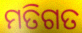
ମତିଗତ